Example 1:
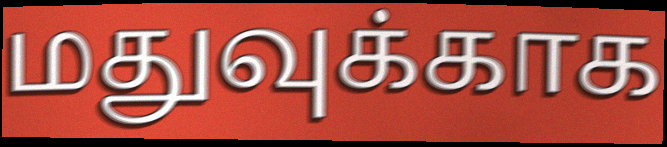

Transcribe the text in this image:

மதுவுக்காக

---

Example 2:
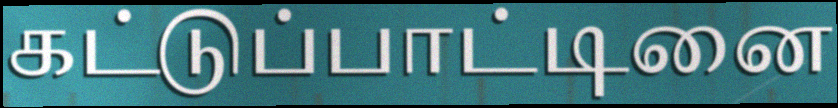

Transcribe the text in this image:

கட்டுப்பாட்டினை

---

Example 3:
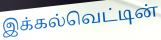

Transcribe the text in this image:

இக்கல்வெட்டின்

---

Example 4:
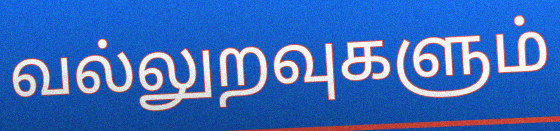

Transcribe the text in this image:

வல்லுறவுகளும்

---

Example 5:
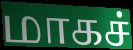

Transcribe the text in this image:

மாகச்